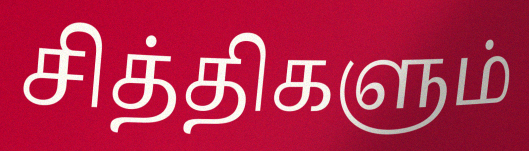
சித்திகளும்